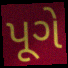
પૂગે